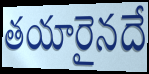
తయారైనదే